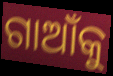
ଗାଆଁକୁ